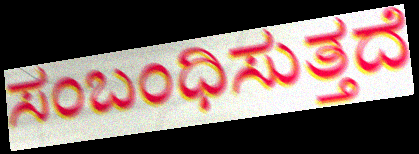
ಸಂಬಂಧಿಸುತ್ತದೆ